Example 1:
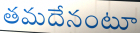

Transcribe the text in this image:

తమదేనంటూ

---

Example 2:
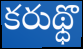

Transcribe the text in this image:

కరుథ్ధొ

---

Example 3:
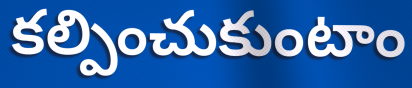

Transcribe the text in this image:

కల్పించుకుంటాం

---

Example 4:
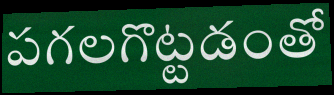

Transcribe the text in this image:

పగలగొట్టడంతో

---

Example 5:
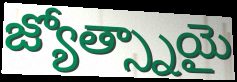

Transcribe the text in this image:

జ్యోత్స్నాయై